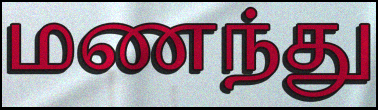
மணந்து